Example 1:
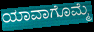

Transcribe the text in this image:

ಯಾವಾಗೊಮ್ಮೆ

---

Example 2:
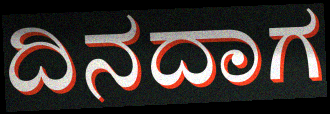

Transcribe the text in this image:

ದಿನದಾಗ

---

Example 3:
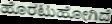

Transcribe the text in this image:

ಹೊರಟುಹೋಗಿದೆ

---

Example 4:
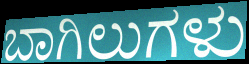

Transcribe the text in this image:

ಬಾಗಿಲುಗಳು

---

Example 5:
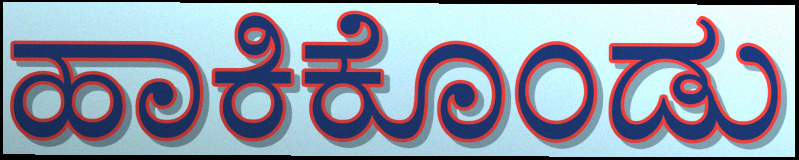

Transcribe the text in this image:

ಹಾಕಿಕೊಂಡು